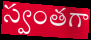
స్వంతగా